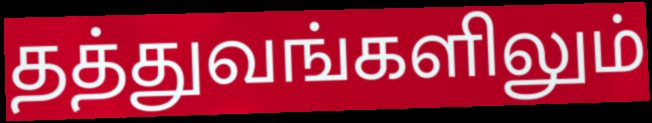
தத்துவங்களிலும்